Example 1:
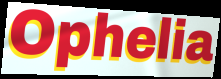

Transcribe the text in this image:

Ophelia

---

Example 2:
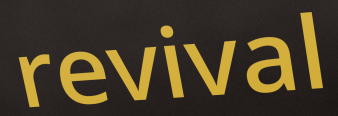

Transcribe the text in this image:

revival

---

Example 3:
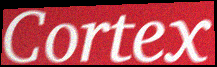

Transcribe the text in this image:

Cortex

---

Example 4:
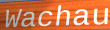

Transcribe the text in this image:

Wachau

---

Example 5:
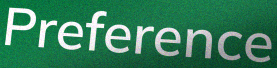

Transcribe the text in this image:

Preference